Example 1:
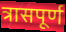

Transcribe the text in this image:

त्रासपूर्ण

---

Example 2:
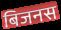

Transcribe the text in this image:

बिजनस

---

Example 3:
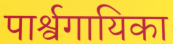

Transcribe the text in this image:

पार्श्वगायिका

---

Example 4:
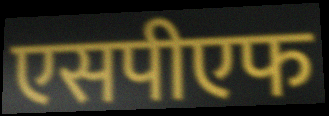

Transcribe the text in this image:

एसपीएफ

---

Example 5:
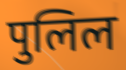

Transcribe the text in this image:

पुलिल